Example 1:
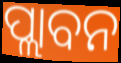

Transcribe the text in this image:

ପ୍ଲାବନ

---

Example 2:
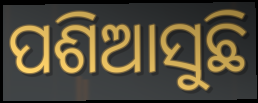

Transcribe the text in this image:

ପଶିଆସୁଛି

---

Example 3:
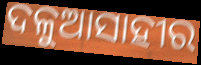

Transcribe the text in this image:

ଦଳୁଆସାହୀର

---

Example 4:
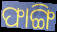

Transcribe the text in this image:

ଫାଙ୍ଗି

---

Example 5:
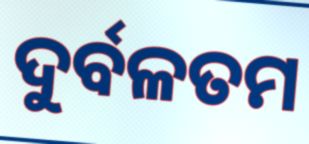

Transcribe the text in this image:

ଦୁର୍ବଳତମ